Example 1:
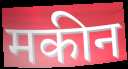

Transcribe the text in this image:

मकीन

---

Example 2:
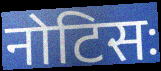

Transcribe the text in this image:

नोटिसः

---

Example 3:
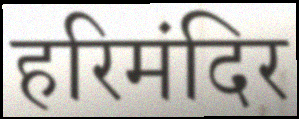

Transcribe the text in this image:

हरिमंदिर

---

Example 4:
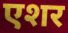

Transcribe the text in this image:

एशर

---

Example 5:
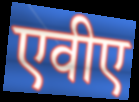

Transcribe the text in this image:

एवीए